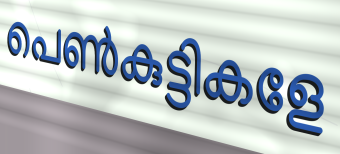
പെൺകുട്ടികളേ